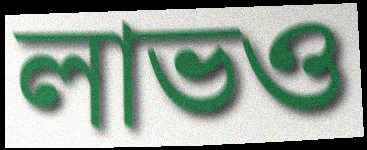
লাভও